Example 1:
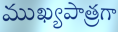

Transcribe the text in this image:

ముఖ్యపాత్రగా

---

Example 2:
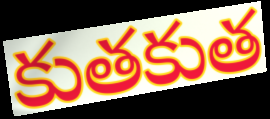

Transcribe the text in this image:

కుతకుత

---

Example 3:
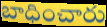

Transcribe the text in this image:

బాధించారు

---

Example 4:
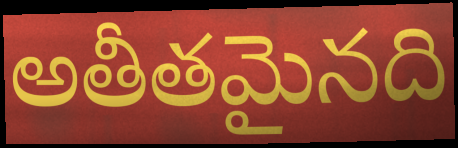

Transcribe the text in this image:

అతీతమైనది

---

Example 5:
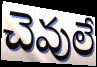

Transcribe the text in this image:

చెవులే